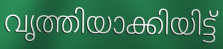
വൃത്തിയാക്കിയിട്ട്